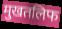
मुखतलिफ